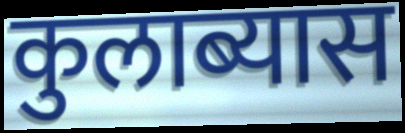
कुलाब्यास